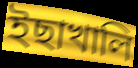
ইছাখালি